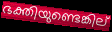
ഭക്തിയുണ്ടെങ്കില്